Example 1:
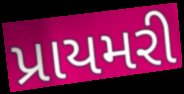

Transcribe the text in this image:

પ્રાયમરી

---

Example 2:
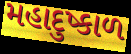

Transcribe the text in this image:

મહાદુષ્કાળ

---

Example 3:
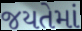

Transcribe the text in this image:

જયતેમાં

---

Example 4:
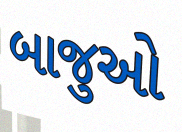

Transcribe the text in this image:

બાજુઓ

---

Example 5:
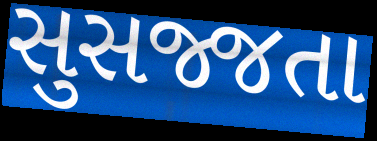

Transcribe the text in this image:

સુસજ્જતા